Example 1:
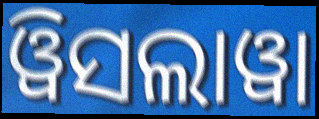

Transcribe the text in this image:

ୱିସଲାୱା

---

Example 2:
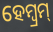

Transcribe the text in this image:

ହେମ୍ବ୍ରମ୍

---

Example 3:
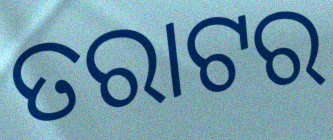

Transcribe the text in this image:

ତରାଟର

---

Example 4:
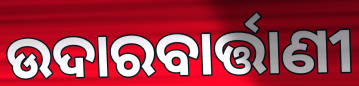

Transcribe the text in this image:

ଉଦାରବାର୍ତ୍ତାଣୀ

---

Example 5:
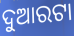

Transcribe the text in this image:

ଦୁଆରଟା